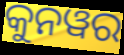
କୁନୱର